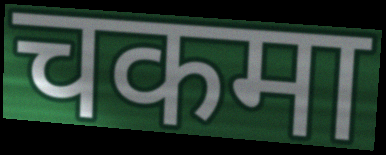
चकमा